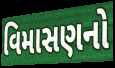
વિમાસણનો